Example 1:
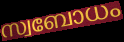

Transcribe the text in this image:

സ്വബോധം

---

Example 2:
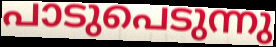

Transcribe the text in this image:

പാടുപെടുന്നു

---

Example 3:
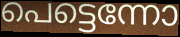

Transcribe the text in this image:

പെട്ടെന്നോ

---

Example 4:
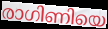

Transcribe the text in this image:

രാഗിണിയെ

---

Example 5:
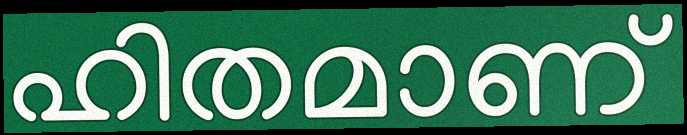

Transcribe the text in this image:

ഹിതമാണ്